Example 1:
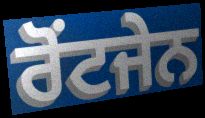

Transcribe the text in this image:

ਰੋਂਟਜੇਨ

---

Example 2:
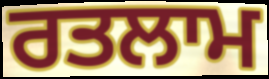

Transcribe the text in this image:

ਰਤਲਾਮ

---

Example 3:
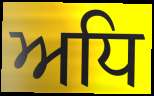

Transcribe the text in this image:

ਅਧਿ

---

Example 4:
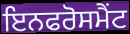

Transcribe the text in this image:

ਇਨਫਰੋਸਮੈਂਟ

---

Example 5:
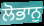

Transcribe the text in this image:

ਲੋਭਾਨੁ